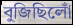
বুজিছিলোঁ